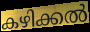
കഴിക്കൽ